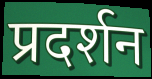
प्रदर्शन